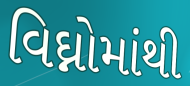
વિઘ્નોમાંથી